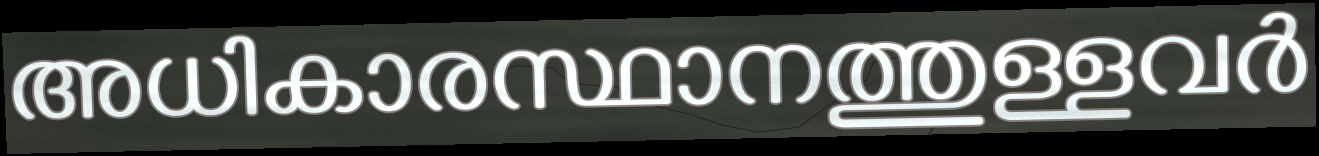
അധികാരസ്ഥാനത്തുള്ളവർ